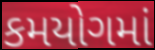
કમયોગમાં